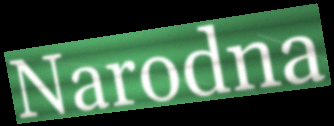
Narodna